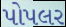
પોપલર